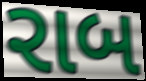
રાબ